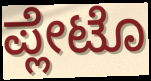
ಪ್ಲೇಟೊ